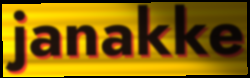
janakke